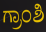
ಗ್ರಾಂಶಿ